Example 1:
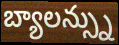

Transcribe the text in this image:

బ్యాలన్స్ను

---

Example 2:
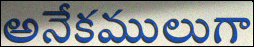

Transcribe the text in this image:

అనేకములుగా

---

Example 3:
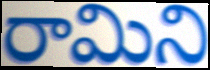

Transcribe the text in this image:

రామిని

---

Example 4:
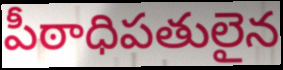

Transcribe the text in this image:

పీఠాధిపతులైన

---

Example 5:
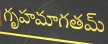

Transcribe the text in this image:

గృహమాగతమ్